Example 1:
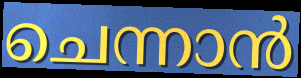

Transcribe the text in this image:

ചെന്നാൻ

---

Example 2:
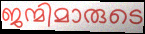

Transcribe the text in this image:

ജന്മിമാരുടെ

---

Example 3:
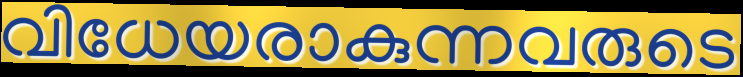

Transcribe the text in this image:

വിധേയരാകുന്നവരുടെ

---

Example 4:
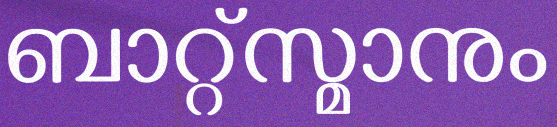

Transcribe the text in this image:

ബാറ്റ്സ്മാനും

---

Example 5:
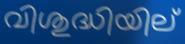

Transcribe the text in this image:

വിശുദ്ധിയില്